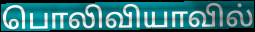
பொலிவியாவில்